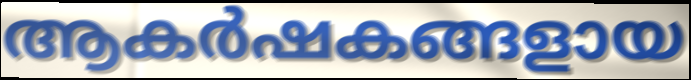
ആകർഷകങ്ങളായ